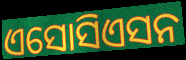
ଏସୋସିଏସନ